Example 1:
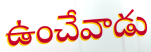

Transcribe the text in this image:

ఉంచేవాడు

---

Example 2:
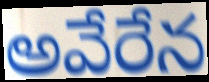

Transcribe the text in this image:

అవేరేన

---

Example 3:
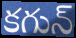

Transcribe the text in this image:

కగున్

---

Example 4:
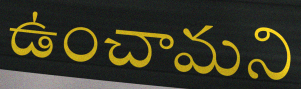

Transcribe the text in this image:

ఉంచామని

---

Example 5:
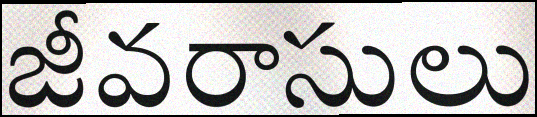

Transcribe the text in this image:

జీవరాసులు